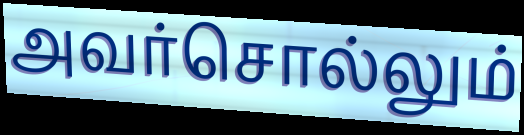
அவர்சொல்லும்